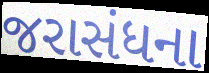
જરાસંધના